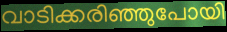
വാടിക്കരിഞ്ഞുപോയി